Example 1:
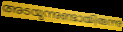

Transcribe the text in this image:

അടയുന്നുണ്ടായിരുന്നു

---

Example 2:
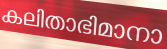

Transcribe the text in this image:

കലിതാഭിമാനാ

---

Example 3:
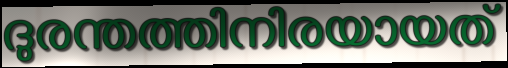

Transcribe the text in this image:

ദുരന്തത്തിനിരയായത്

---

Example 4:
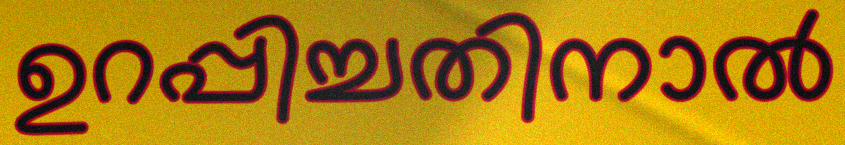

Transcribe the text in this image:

ഉറപ്പിച്ചതിനാൽ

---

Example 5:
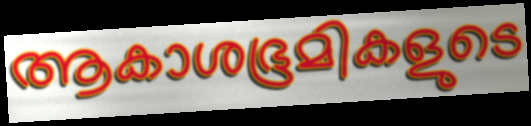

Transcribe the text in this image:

ആകാശഭൂമികളുടെ